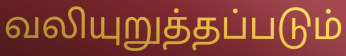
வலியுறுத்தப்படும்